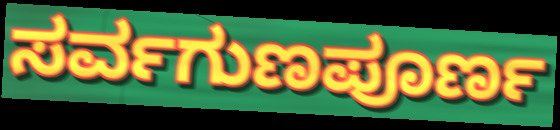
ಸರ್ವಗುಣಪೂರ್ಣ